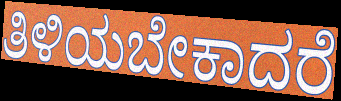
ತಿಳಿಯಬೇಕಾದರೆ